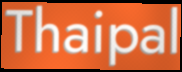
Thaipal